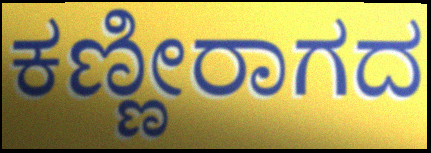
ಕಣ್ಣೀರಾಗದ